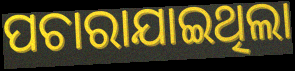
ପଚାରାଯାଇଥିଲା